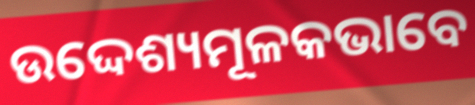
ଉଦ୍ଦେଶ୍ୟମୂଳକଭାବେ